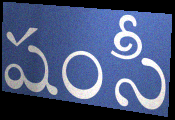
షంసీ